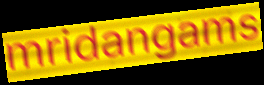
mridangams